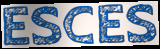
ESCES